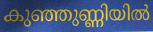
കുഞ്ഞുണ്ണിയിൽ